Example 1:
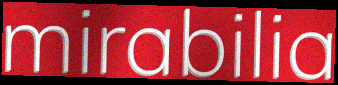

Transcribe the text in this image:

mirabilia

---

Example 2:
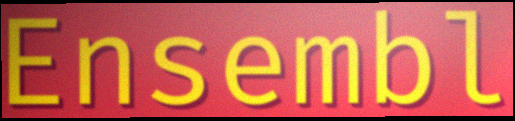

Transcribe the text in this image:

Ensembl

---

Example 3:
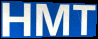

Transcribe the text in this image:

HMT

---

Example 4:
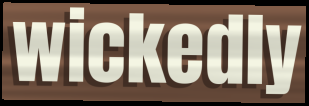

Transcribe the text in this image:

wickedly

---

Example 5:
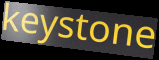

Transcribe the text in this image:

keystone